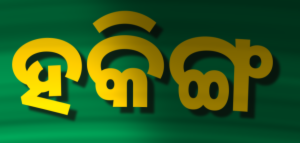
ହକିଙ୍ଗ